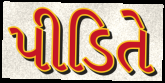
પીડિતે